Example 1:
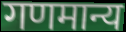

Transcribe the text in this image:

गणमान्य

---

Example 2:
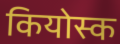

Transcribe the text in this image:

कियोस्क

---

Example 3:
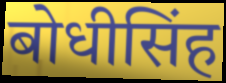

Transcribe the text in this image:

बोधीसिंह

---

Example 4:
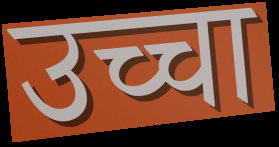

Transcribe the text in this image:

उच्चा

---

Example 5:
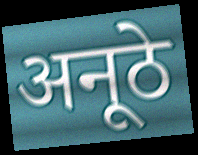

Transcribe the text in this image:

अनूठे